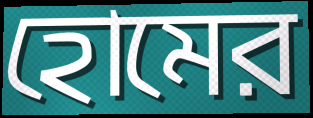
হোমের